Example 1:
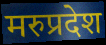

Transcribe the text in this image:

मरुप्रदेश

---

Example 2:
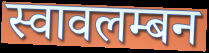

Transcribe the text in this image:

स्वावलम्बन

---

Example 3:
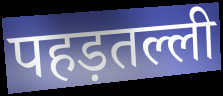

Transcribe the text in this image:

पहड़तल्ली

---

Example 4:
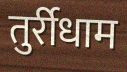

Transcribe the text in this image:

तुर्रीधाम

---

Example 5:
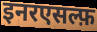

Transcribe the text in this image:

इनरएसल्फ़